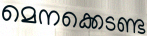
മെനക്കെടണ്ട